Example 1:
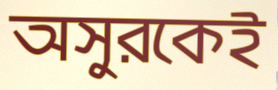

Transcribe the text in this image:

অসুরকেই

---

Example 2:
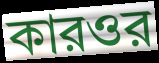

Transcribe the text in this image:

কারওর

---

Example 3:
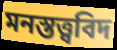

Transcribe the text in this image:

মনস্তত্ত্ববিদ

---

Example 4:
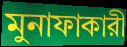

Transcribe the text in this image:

মুনাফাকারী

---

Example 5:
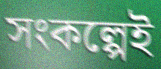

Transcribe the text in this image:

সংকল্পেই